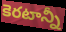
కెరటాన్నీ